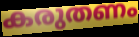
കരുതണം